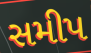
સમીપ